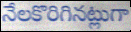
నేలకొరిగినట్లుగా